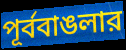
পূর্ববাঙলার